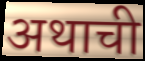
अथाची